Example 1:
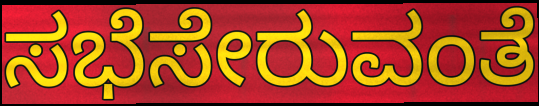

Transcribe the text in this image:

ಸಭೆಸೇರುವಂತೆ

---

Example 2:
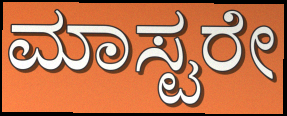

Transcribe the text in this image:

ಮಾಸ್ಟರೇ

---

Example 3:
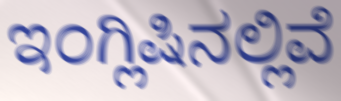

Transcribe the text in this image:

ಇಂಗ್ಲಿಷಿನಲ್ಲಿವೆ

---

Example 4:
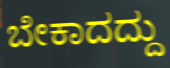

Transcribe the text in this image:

ಬೇಕಾದದ್ದು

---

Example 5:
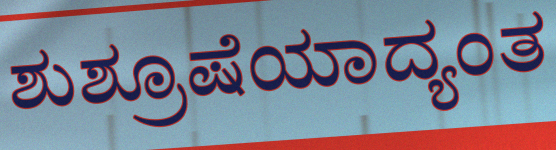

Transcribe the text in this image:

ಶುಶ್ರೂಷೆಯಾದ್ಯಂತ